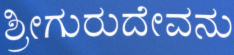
ಶ್ರೀಗುರುದೇವನು